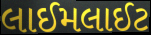
લાઈમલાઈટ